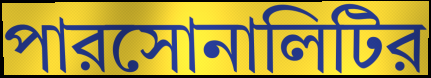
পারসোনালিটির